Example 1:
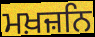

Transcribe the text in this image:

ਮਖ਼ਜ਼ਨਿ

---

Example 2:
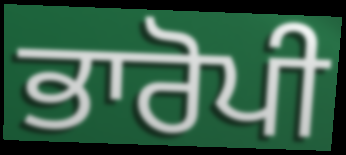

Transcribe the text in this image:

ਭਾਰੋਪੀ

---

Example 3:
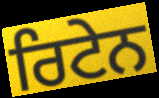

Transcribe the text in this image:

ਰਿਟੇਨ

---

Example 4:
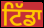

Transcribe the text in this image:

ਟਿੱਡਾ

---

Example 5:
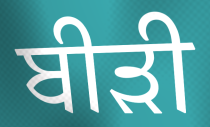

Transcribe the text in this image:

ਬੀਡ਼ੀ